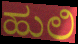
ಹುಲಿ